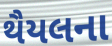
થૈયલના